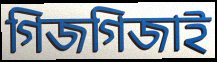
গিজগিজাই